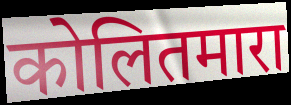
कोलितमारा